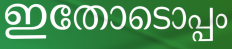
ഇതോടൊപ്പം